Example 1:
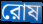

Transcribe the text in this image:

রোষ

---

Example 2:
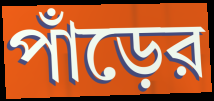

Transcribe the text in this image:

পাঁড়ের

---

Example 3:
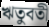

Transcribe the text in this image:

ঋতুবতী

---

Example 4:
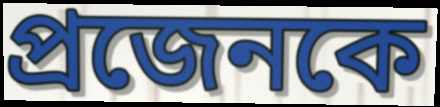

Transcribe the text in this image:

প্রজেনকে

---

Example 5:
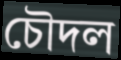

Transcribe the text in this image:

চৌদল